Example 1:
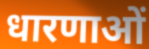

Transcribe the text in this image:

धारणाओं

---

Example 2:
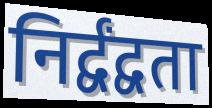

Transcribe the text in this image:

निर्द्वंद्वता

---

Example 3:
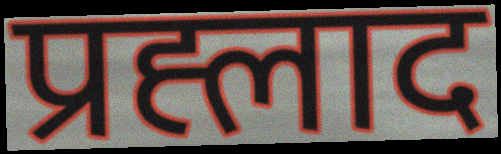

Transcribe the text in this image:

प्रह्लाद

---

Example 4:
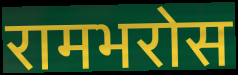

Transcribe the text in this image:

रामभरोस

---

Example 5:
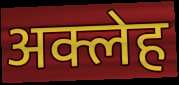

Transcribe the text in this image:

अक्लेह